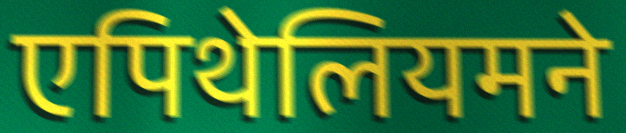
एपिथेलियमने